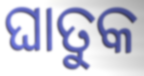
ଘାତୁକ